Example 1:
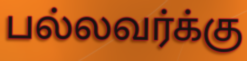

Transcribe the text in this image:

பல்லவர்க்கு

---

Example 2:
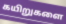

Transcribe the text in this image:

கயிறுகளை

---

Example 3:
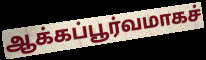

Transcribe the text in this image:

ஆக்கப்பூர்வமாகச்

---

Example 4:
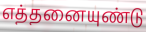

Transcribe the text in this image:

எத்தனையுண்டு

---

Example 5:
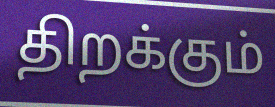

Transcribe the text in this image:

திறக்கும்